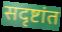
सदृष्टांत